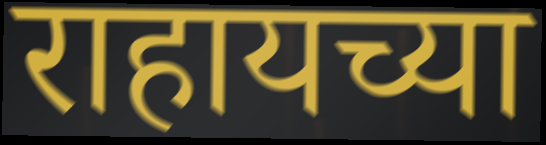
राहायच्या